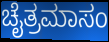
ಚೈತ್ರಮಾಸಂ